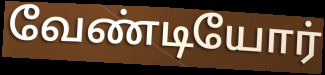
வேண்டியோர்